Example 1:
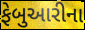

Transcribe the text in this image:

ફેબુઆરીના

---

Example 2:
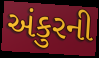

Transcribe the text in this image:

અંકુરની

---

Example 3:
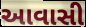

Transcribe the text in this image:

આવાસી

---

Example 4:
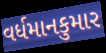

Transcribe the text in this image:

વર્ધમાનકુમાર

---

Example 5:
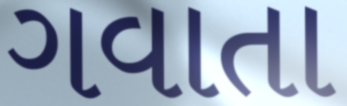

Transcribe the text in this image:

ગવાતા